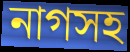
নাগসহ